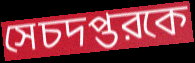
সেচদপ্তরকে